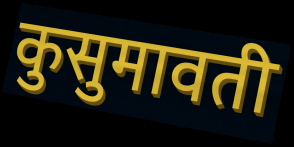
कुसुमावती